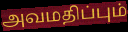
அவமதிப்பும்